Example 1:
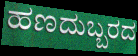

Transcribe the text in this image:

ಹಣದುಬ್ಬರದ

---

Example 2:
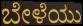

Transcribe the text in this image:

ಬೇಳೆಯು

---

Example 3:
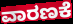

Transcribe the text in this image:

ವಾರಣಕೆ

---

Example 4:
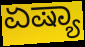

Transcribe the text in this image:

ಏಷ್ಯಾ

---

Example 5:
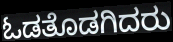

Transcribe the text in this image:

ಓಡತೊಡಗಿದರು